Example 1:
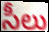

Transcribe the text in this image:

సీలు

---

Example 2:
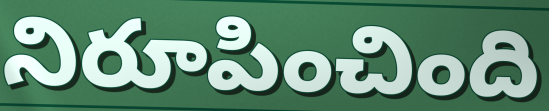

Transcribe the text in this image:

నిరూపించింది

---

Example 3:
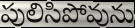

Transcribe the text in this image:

పులిసిపోవును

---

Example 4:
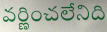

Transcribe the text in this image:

వర్ణించలేనిది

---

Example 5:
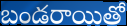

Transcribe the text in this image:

బండరాయితో